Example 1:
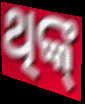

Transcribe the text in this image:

ଥିଙ୍କ୍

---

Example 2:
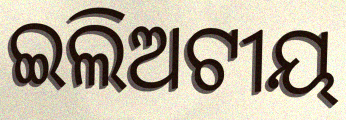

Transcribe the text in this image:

ଇଲିଅଟୀୟ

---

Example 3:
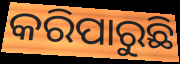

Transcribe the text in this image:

କରିପାରୁଛି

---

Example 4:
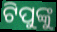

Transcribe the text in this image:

ଟିପୁଙ୍କୁ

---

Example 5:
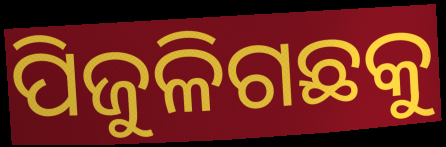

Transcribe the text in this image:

ପିଜୁଳିଗଛକୁ